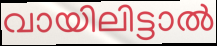
വായിലിട്ടാൽ